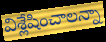
విశ్లేషించాలన్నా